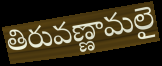
తిరువణ్ణామలై